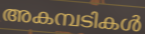
അകമ്പടികൾ